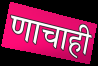
णाचाही